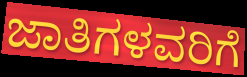
ಜಾತಿಗಳವರಿಗೆ